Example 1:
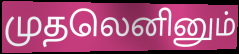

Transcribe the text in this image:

முதலெனினும்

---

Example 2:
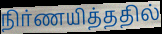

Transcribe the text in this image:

நிர்ணயித்ததில்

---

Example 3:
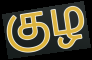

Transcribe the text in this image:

குழ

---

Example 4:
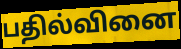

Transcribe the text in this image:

பதில்வினை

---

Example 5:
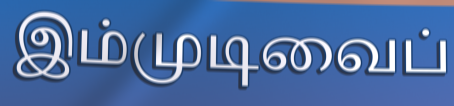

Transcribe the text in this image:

இம்முடிவைப்